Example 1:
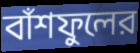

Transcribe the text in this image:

বাঁশফুলের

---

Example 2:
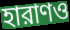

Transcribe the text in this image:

হারাণও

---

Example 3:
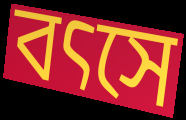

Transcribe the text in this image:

বৎসে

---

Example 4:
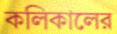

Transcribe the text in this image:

কলিকালের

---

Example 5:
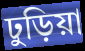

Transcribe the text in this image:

ঢুড়িয়া